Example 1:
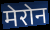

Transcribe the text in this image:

मेरोन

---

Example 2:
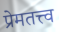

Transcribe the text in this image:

प्रेमतत्त्व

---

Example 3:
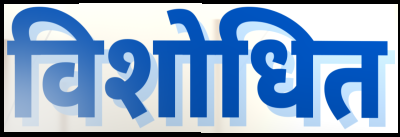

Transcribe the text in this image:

विशोधित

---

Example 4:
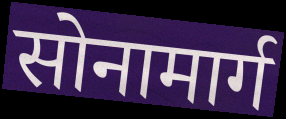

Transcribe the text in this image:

सोनामार्ग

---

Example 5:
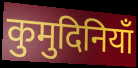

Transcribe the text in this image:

कुमुदिनियाँ